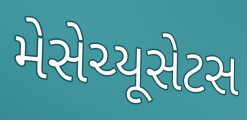
મેસેચ્યૂસેટસ